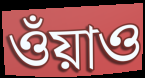
ওঁয়াও